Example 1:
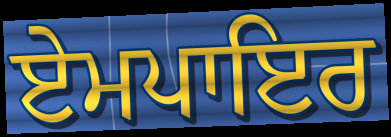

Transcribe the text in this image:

ਏਮਪਾਇਰ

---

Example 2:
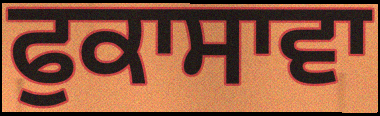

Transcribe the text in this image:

ਫੁਕਾਸਾਵਾ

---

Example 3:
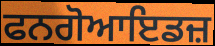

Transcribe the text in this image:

ਫਨਗੋਆਇਡਜ਼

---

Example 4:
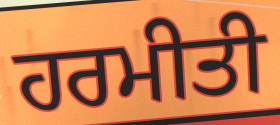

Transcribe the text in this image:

ਹਰਮੀਤੀ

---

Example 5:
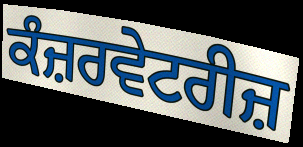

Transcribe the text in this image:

ਕੰਜ਼ਰਵੇਟਰੀਜ਼